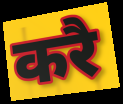
करै